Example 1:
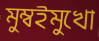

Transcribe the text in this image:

মুম্বইমুখো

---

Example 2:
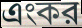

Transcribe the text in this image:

এংকর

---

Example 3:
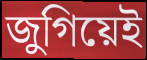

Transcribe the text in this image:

জুগিয়েই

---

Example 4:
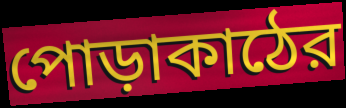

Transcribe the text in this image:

পোড়াকাঠের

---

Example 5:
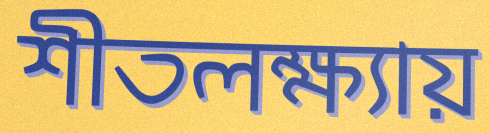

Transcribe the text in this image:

শীতলক্ষ্যায়